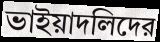
ভাইয়াদলিদের